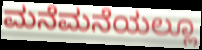
ಮನೆಮನೆಯಲ್ಲೂ